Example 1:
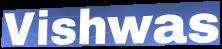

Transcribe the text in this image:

Vishwas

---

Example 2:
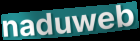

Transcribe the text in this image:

naduweb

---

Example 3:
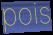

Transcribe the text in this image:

pois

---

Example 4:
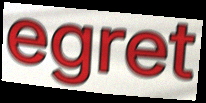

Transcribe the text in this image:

egret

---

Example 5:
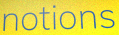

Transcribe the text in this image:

notions